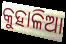
କୁହାଳିଆ